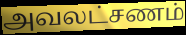
அவலட்சணம்